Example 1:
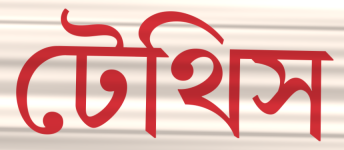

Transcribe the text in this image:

টেথিস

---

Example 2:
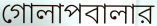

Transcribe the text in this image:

গোলাপবালার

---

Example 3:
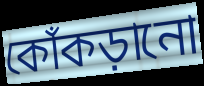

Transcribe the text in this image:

কোঁকড়ানো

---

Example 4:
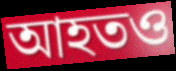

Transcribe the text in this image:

আহতও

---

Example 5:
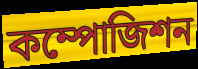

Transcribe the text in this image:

কম্পোজিশন